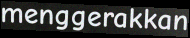
menggerakkan